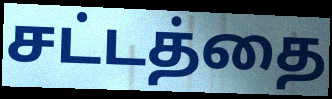
சட்டத்தை